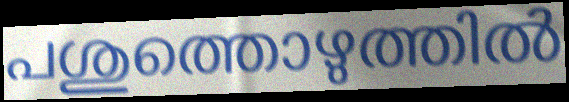
പശുത്തൊഴുത്തിൽ